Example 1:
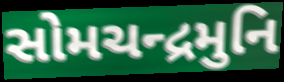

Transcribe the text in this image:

સોમચન્દ્રમુનિ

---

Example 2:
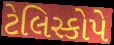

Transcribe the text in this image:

ટેલિસ્કોપે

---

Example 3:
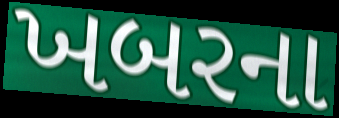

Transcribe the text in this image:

ખબરના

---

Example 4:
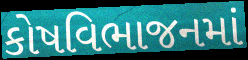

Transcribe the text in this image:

કોષવિભાજનમાં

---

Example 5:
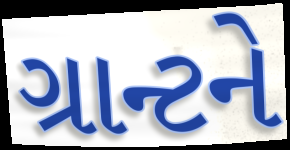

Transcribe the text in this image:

ગ્રાન્ટને